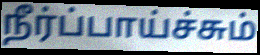
நீர்ப்பாய்ச்சும்